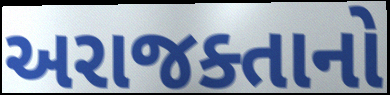
અરાજક્તાનો